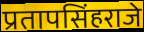
प्रतापसिंहराजे